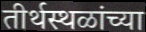
तीर्थस्थळांच्या